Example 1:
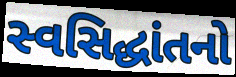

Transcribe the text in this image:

સ્વસિદ્ધાંતનો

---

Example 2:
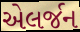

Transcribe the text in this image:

એલર્જન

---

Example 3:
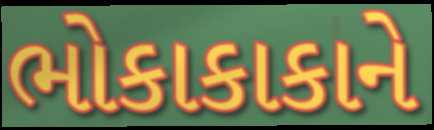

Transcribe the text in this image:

ભોકાકાકાને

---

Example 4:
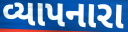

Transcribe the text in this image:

વ્યાપનારા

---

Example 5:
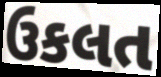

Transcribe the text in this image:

ઉકલત